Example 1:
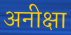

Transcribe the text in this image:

अनीक्षा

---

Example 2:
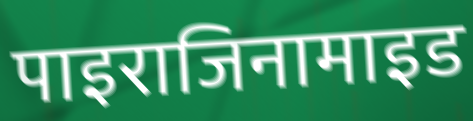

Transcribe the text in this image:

पाइराजिनामाइड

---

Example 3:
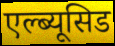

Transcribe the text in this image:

एल्ब्यूसिड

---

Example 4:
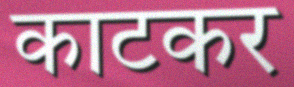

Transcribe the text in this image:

काटकर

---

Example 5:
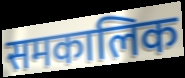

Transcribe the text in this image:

समकालिक